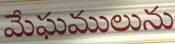
మేఘములును